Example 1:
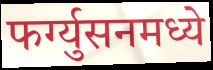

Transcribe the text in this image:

फर्ग्युसनमध्ये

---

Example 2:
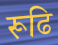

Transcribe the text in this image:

रूढि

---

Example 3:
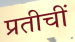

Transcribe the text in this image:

प्रतीचीं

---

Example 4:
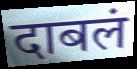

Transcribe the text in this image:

दाबलं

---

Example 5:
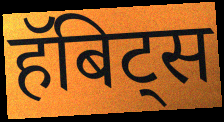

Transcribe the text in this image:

हॅबिट्स